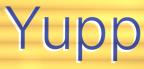
Yupp